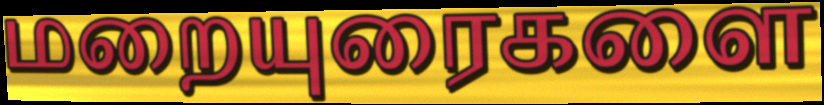
மறையுரைகளை